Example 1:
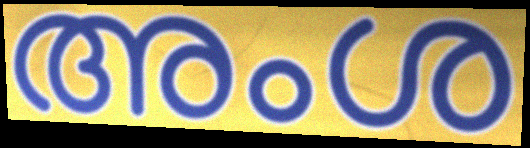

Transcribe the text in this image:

അംശ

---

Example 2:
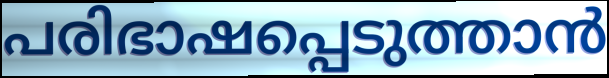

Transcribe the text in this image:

പരിഭാഷപ്പെടുത്താൻ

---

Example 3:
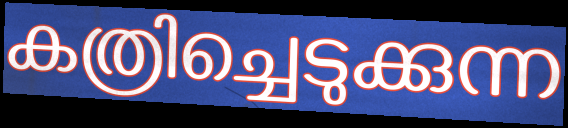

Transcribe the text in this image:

കത്രിച്ചെടുക്കുന്ന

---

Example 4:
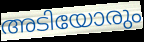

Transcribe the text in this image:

അടിയോരും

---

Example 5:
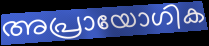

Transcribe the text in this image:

അപ്രായോഗിക